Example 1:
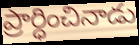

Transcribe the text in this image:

ప్రార్ధించినాడు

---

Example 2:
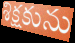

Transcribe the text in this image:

శిక్షకును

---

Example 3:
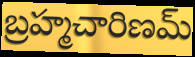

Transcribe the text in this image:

బ్రహ్మచారిణమ్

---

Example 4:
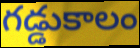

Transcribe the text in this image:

గడ్డుకాలం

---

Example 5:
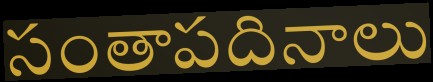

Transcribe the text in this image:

సంతాపదినాలు